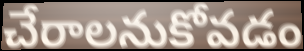
చేరాలనుకోవడం